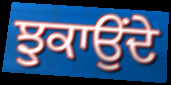
ਝੁਕਾਉੰਦੇ